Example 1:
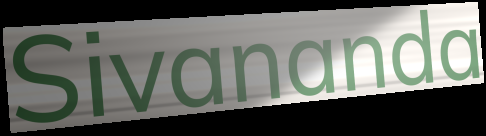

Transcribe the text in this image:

Sivananda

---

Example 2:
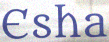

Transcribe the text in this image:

Esha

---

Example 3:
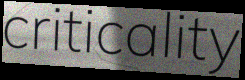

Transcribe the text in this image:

criticality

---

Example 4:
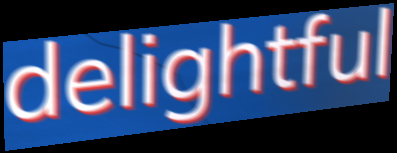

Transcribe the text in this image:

delightful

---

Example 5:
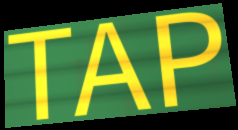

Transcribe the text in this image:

TAP